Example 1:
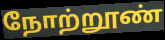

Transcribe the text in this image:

நோற்றூண்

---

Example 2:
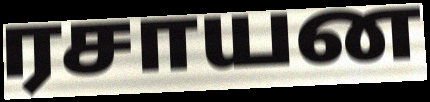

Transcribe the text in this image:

ரசாயன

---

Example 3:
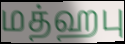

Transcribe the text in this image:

மத்ஹபு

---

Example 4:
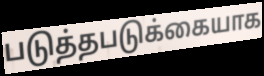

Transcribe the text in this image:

படுத்தபடுக்கையாக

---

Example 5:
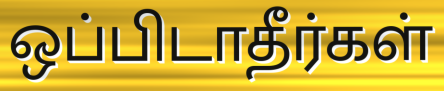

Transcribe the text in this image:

ஒப்பிடாதீர்கள்